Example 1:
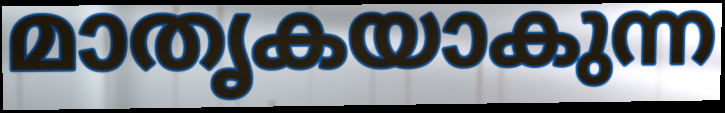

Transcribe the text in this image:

മാതൃകയാകുന്ന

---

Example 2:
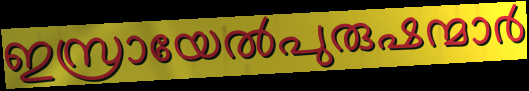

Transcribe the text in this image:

ഇസ്രായേൽപുരുഷന്മാർ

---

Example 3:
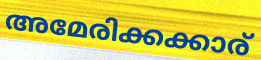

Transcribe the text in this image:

അമേരിക്കക്കാര്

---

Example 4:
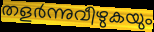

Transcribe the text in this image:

തളർന്നുവീഴുകയും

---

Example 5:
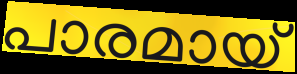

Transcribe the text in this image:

പാരമായ്